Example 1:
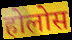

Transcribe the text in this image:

होलोस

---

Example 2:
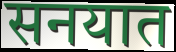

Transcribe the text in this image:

सनयात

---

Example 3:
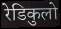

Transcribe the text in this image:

रेडिकुलो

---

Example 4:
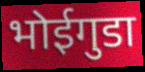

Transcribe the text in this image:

भोईगुडा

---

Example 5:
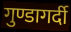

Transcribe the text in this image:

गुण्डागर्दी